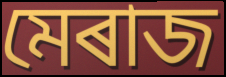
মেৰাজ